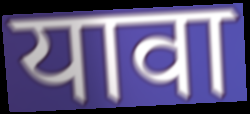
यावा